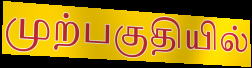
முற்பகுதியில்